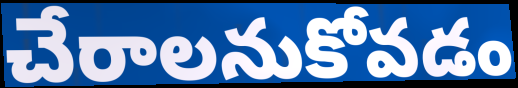
చేరాలనుకోవడం